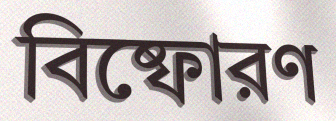
বিষ্ফোরণ